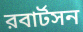
রবার্টসন